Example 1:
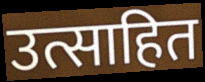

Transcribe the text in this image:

उत्साहित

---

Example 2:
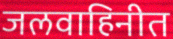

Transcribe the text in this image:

जलवाहिनीत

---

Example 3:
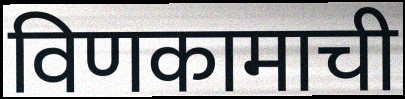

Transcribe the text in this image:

विणकामाची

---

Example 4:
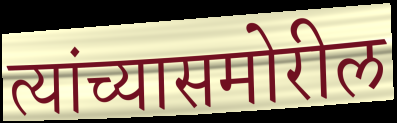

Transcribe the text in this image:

त्यांच्यासमोरील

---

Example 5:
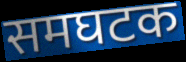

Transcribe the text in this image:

समघटक